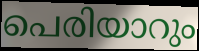
പെരിയാറും